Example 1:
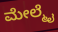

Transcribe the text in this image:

ಮೇಲ್ಮೈ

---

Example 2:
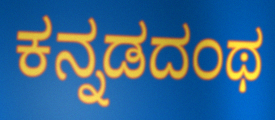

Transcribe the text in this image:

ಕನ್ನಡದಂಥ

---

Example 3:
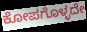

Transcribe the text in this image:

ಕೋಪಗೊಳ್ಳದೇ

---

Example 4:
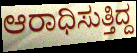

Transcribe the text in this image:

ಆರಾಧಿಸುತ್ತಿದ್ದ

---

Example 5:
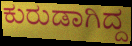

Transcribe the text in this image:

ಕುರುಡಾಗಿದ್ದ